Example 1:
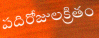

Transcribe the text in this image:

పదిరోజులక్రితం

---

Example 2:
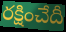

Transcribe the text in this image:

రక్షించేదీ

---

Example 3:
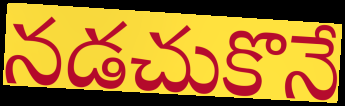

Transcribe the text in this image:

నడచుకొనే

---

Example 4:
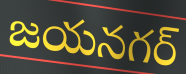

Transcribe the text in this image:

జయనగర్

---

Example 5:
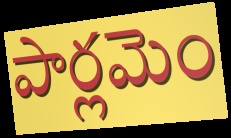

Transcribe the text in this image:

పార్లమెం